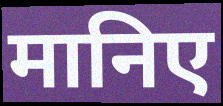
मानिए